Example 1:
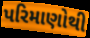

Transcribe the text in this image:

પરિમાણોથી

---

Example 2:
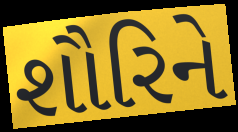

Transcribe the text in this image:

શૌરિને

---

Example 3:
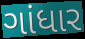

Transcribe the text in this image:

ગાંધાર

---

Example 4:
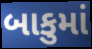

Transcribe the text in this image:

બાકુમાં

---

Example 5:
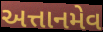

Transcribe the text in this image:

અત્તાનમેવ